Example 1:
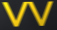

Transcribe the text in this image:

VV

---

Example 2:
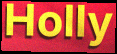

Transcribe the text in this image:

Holly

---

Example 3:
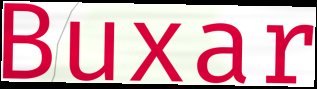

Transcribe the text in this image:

Buxar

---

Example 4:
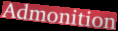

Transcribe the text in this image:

Admonition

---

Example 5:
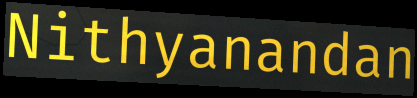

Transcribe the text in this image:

Nithyanandan